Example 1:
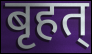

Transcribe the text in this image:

बृहत्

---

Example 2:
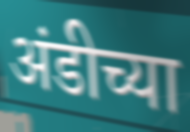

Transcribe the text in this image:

अंडीच्या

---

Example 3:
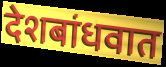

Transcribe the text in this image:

देशबांधवात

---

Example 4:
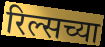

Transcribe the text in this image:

रिल्सच्या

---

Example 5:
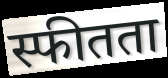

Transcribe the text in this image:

स्फीतता